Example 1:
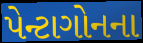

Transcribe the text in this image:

પેન્ટાગોનના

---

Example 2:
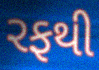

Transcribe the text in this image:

રફથી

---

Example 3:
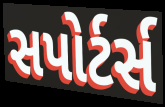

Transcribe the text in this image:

સપોર્ટર્સ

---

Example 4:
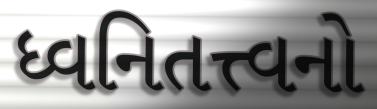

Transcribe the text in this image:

ધ્વનિતત્ત્વનો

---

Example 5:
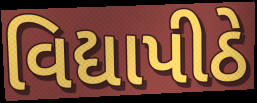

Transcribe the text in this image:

વિદ્યાપીઠે